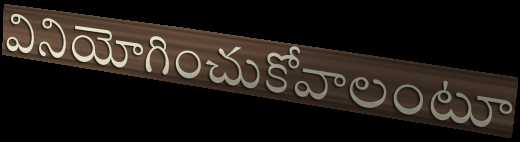
వినియోగించుకోవాలంటూ